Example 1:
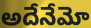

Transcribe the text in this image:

అదేనేమో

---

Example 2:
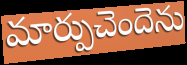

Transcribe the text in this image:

మార్పుచెందెను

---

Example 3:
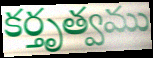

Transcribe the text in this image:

కర్తృత్వము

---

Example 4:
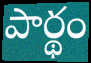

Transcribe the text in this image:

పార్థం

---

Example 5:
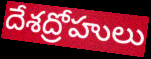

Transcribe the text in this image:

దేశద్రోహులు